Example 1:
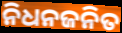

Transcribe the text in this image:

ନିଧନଜନିତ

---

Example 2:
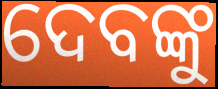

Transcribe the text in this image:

ଦେବଙ୍କୁ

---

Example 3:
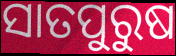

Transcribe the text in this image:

ସାତପୁରୁଷ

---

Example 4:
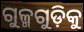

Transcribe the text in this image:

ଗୁଳ୍ମଗୁଡ଼ିକୁ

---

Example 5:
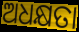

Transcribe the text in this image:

ଅଧକ୍ଷତା